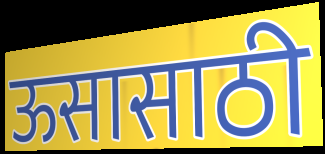
ऊसासाठी